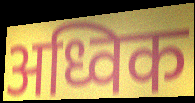
अध्विक